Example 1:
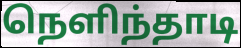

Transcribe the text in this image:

நெளிந்தாடி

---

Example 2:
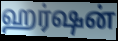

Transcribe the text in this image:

ஹர்ஷன்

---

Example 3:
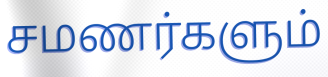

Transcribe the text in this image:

சமணர்களும்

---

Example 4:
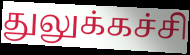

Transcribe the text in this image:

துலுக்கச்சி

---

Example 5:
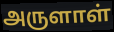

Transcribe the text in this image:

அருளாள்